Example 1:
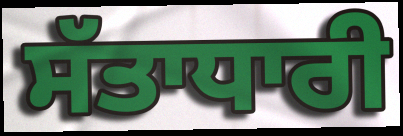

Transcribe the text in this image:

ਸੱਤਾਧਾਰੀ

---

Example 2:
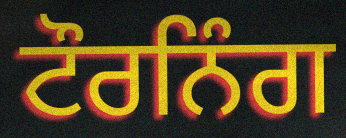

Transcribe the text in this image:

ਟੌਰਨਿੰਗ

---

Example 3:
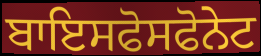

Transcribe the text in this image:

ਬਾਇਸਫੋਸਫੋਨੇਟ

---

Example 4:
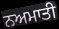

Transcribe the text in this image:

ਨਅਮਾਤੀ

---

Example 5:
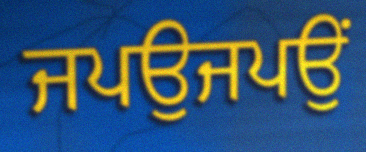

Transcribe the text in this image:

ਜਪਉਜਪਉਂ